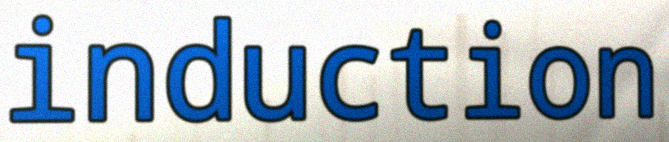
induction